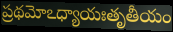
ప్రథమోఽధ్యాయఃతృతీయం